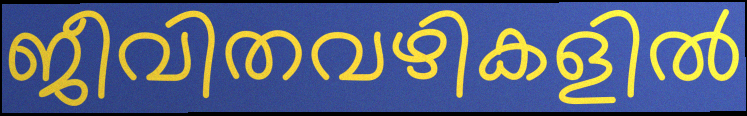
ജീവിതവഴികളിൽ